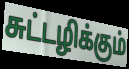
சுட்டழிக்கும்